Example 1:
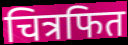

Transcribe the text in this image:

चित्रफित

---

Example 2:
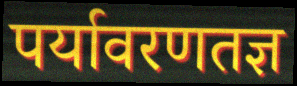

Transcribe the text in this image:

पर्यावरणतज्ञ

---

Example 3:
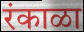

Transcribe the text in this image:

रंकाळा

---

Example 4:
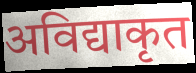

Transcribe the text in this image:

अविद्याकृत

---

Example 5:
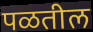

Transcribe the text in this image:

पळतील